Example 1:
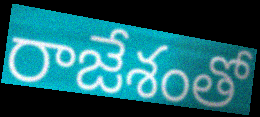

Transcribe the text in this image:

రాజేశంతో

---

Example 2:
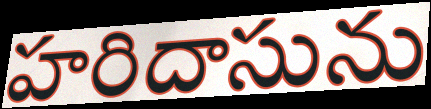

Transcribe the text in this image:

హరిదాసును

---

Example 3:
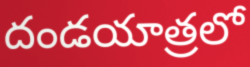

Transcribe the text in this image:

దండయాత్రలో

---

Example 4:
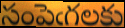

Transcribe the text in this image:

సంపెఁగలకు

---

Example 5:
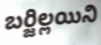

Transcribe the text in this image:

బర్జిల్లయిని